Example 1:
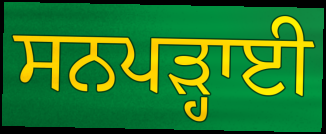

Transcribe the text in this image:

ਸਨਪੜ੍ਹਾਈ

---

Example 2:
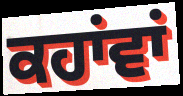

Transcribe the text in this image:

ਕਹਾਂਵਾਂ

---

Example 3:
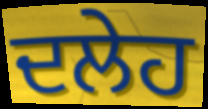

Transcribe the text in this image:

ਦਲੇਹ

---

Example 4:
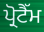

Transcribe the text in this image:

ਪ੍ਰੋਟੈੱਮ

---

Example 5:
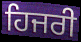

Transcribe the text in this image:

ਹਿਜਰੀ